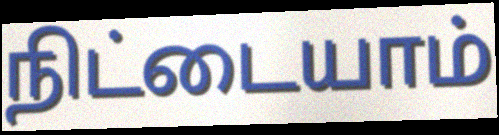
நிட்டையாம்